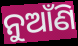
ନୁଆଁଣି